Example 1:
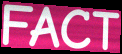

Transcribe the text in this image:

FACT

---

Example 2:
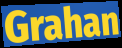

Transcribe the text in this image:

Grahan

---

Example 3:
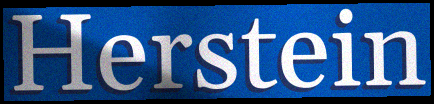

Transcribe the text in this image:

Herstein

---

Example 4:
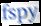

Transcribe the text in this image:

fspy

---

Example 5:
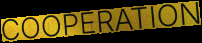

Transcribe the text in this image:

COOPERATION